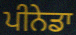
ਪੀਨੇਡਾ